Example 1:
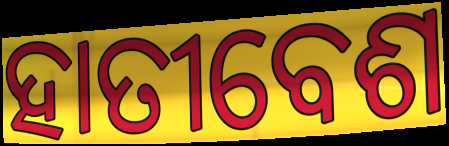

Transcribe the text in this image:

ହାତୀବେଶ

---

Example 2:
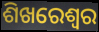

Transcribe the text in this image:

ଶିଖରେଶ୍ୱର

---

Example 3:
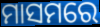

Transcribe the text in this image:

ମାସମରେ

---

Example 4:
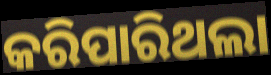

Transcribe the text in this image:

କରିପାରିଥଲା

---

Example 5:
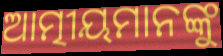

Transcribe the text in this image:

ଆତ୍ମୀୟମାନଙ୍କୁ